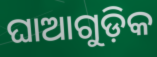
ଘାଆଗୁଡ଼ିକ